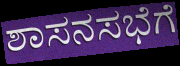
ಶಾಸನಸಭೆಗೆ